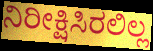
ನಿರೀಕ್ಷಿಸಿರಲಿಲ್ಲ